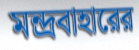
মন্দ্রবাহারের